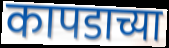
कापडाच्या